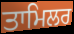
ਤਾਮਿਲਰ